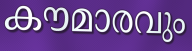
കൗമാരവും